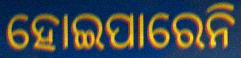
ହୋଇପାରେନି